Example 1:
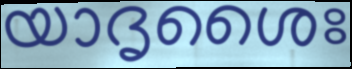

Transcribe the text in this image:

യാദൃശൈഃ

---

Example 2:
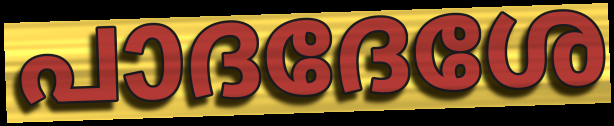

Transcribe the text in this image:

പാദദേശേ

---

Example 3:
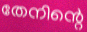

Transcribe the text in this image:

തേനിന്റെ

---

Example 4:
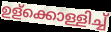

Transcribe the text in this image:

ഉള്ക്കൊള്ളിച്ച്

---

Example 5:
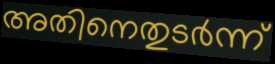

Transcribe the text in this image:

അതിനെതുടർന്ന്